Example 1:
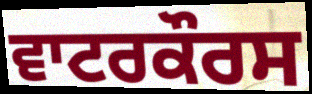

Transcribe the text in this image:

ਵਾਟਰਕੌਰਸ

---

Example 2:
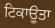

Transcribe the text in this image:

ਟਿਕਾਊਤਾ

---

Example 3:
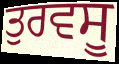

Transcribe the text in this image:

ਤੁਰਵਸੂ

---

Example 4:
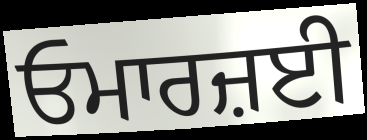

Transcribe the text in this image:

ਓਮਾਰਜ਼ਈ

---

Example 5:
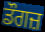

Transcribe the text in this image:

ਡੌਗਜ਼